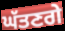
ਘੱਤਣਗੇ